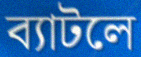
ব্যাটলে